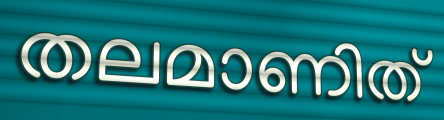
തലമാണിത്